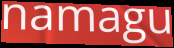
namagu